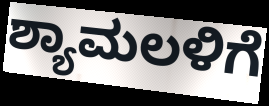
ಶ್ಯಾಮಲಳಿಗೆ